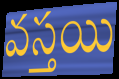
వస్తయి